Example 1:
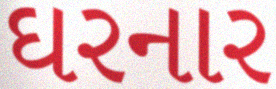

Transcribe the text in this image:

ઘરનાર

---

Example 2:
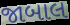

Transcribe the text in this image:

જાબાલ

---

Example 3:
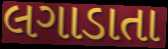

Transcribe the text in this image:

લગાડાતા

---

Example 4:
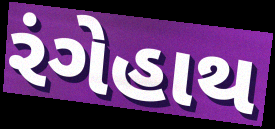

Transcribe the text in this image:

રંગેહાથ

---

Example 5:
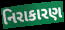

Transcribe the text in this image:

નિરાકારણ